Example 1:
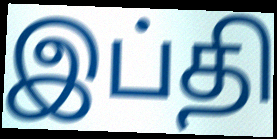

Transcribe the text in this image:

இப்தி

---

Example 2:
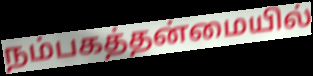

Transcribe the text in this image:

நம்பகத்தன்மையில்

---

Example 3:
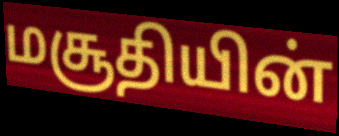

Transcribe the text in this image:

மசூதியின்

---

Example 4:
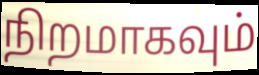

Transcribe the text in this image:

நிறமாகவும்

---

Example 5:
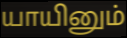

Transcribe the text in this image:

யாயினும்